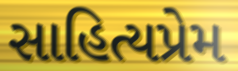
સાહિત્યપ્રેમ